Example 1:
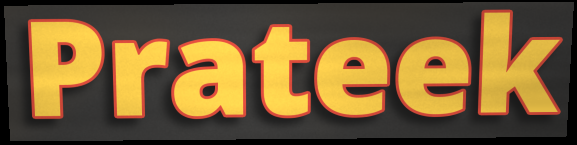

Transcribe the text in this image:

Prateek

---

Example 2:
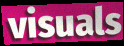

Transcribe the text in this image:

visuals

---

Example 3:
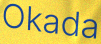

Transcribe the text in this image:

Okada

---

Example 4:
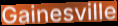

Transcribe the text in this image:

Gainesville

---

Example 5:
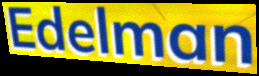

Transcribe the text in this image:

Edelman